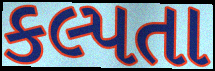
કલ્પતા